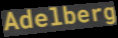
Adelberg